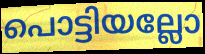
പൊട്ടിയല്ലോ